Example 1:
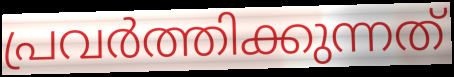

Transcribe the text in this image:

പ്രവർത്തിക്കുന്നത്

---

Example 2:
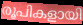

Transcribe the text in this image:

രൂപികളായി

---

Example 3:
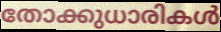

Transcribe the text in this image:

തോക്കുധാരികൾ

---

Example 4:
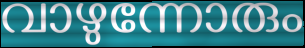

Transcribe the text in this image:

വാഴുന്നോരും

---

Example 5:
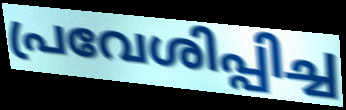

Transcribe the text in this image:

പ്രവേശിപ്പിച്ച